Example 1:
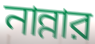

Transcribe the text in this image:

নান্নার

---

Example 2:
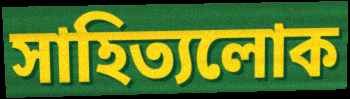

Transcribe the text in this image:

সাহিত্যলোক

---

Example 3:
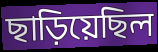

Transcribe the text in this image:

ছাড়িয়েছিল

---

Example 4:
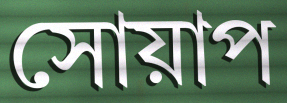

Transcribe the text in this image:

সোয়াপ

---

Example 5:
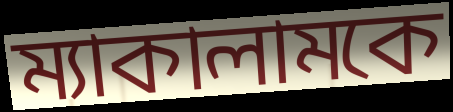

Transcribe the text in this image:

ম্যাকালামকে